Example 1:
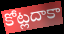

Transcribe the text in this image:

కోట్లదాకా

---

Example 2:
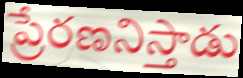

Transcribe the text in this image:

ప్రేరణనిస్తాడు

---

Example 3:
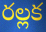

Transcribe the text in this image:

రల్లక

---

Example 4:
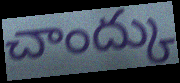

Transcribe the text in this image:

చాంద్కు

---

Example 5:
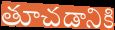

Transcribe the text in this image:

తూచడానికి